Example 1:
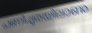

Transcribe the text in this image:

പണിപ്പുരയിലാണു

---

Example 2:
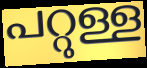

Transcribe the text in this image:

പറ്റുള്ള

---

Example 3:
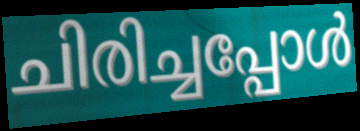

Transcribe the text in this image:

ചിരിച്ചപ്പോൾ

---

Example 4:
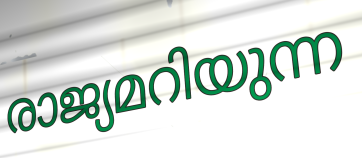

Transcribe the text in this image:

രാജ്യമറിയുന്ന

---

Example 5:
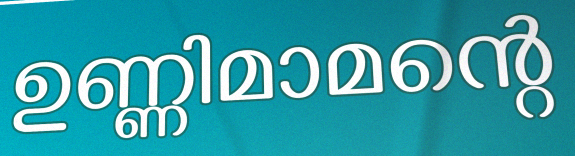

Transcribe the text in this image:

ഉണ്ണിമാമന്റെ